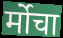
र्मोचा